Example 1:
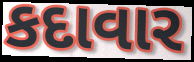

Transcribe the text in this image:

કદાવાર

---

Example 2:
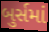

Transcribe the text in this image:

બુર્સમાં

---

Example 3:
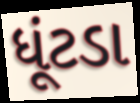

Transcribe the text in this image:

ધૂંટડા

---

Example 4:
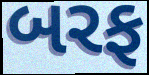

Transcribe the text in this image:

બરફ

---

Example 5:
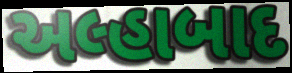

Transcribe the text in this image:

અલ્હાબાદ